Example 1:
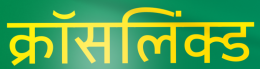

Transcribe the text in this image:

क्रॉसलिंक्ड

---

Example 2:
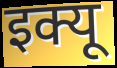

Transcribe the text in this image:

इक्यू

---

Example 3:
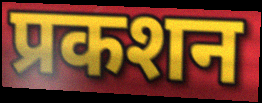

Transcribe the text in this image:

प्रकशन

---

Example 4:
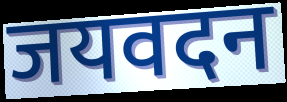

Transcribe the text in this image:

जयवदन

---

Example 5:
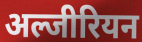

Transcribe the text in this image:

अल्जीरियन